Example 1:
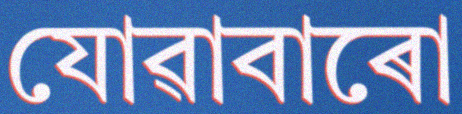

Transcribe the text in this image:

যোৱাবাৰো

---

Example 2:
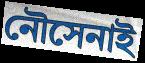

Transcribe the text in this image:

নৌসেনাই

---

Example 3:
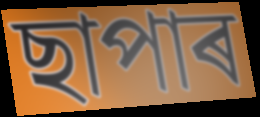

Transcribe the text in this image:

ছাপাৰ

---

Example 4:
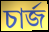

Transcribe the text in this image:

চাৰ্জ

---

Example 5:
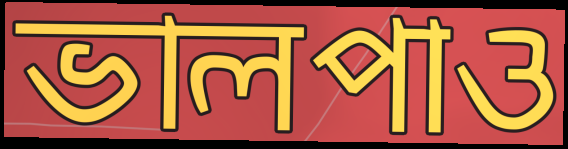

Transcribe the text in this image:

ভালপাও